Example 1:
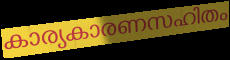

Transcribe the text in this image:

കാര്യകാരണസഹിതം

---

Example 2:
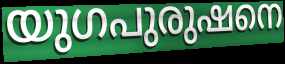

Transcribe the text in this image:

യുഗപുരുഷനെ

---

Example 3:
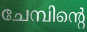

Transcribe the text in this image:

ചേമ്പിന്റെ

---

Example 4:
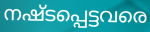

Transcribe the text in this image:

നഷ്ടപ്പെട്ടവരെ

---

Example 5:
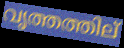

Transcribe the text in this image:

വൃത്തത്തില്